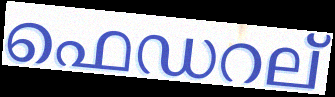
ഫെഡറല്